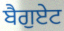
ਬੈਗੁਏਟ